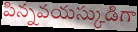
పిన్నవయస్కుడిగా